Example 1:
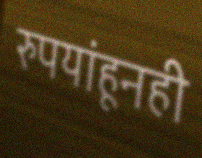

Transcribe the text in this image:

रुपयांहूनही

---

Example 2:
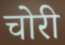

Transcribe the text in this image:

चोरी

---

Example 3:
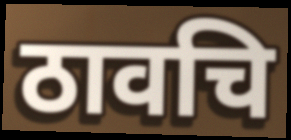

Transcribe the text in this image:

ठावचि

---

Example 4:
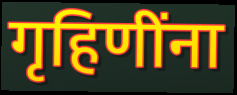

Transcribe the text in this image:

गृहिणींना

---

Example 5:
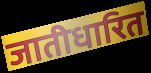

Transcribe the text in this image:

जातीधारित